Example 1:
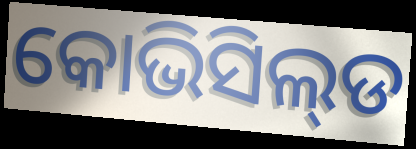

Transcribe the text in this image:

କୋଭିସିଲ୍‌ଡ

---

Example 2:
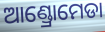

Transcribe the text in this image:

ଆଣ୍ଡ୍ରୋମେଡା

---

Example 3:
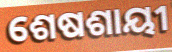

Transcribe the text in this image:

ଶେଷଶାୟୀ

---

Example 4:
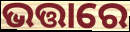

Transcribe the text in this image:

ଭତ୍ତାରେ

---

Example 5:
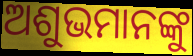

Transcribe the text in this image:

ଅଶୁଭମାନଙ୍କୁ